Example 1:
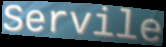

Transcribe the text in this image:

Servile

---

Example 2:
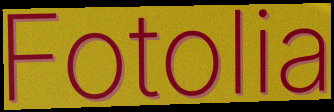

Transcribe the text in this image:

Fotolia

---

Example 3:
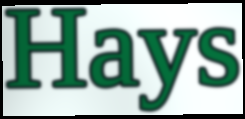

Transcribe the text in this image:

Hays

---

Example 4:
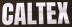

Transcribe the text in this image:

CALTEX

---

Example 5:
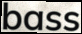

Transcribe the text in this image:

bass